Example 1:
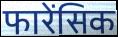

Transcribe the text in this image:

फारेंसिक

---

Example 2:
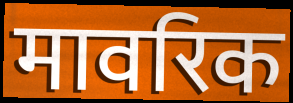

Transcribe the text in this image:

मावरिक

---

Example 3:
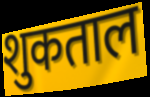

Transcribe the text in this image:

शुकताल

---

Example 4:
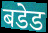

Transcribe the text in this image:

बडेड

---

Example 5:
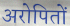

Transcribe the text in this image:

अरोपितों